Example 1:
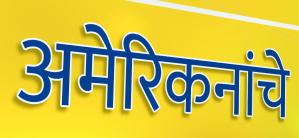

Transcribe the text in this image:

अमेरिकनांचे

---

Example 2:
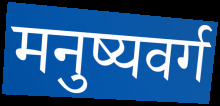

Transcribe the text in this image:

मनुष्यवर्ग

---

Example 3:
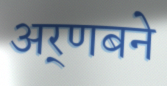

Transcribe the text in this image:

अर्णबने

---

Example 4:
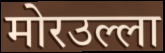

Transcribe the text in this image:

मोरउल्ला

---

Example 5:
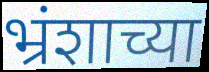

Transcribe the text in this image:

भ्रंशाच्या